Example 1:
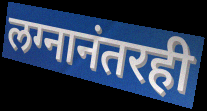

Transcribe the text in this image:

लग्नानंतरही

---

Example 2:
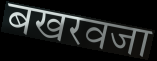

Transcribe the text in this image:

बखरवजा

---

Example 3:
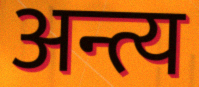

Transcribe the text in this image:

अन्त्य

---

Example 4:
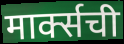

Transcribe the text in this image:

मार्क्सची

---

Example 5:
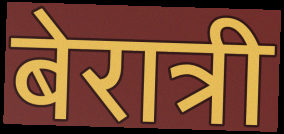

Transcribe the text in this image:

बेरात्री